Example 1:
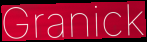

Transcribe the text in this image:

Granick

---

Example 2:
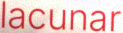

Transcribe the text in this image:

lacunar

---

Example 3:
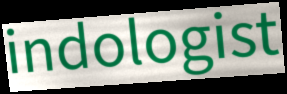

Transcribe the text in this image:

indologist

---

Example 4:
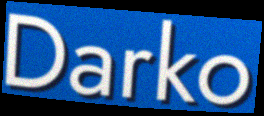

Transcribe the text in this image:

Darko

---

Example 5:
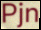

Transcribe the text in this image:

Pjn